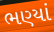
ભણ્યાં